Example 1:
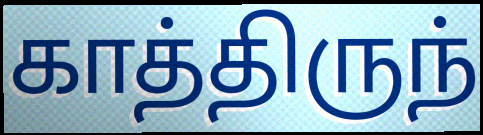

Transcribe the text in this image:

காத்திருந்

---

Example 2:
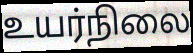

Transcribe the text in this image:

உயர்நிலை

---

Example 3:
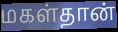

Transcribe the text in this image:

மகள்தான்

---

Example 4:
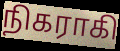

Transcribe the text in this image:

நிகராகி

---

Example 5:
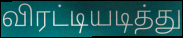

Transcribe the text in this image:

விரட்டியடித்து